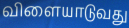
விளையாடுவது